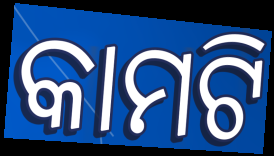
କାମଟି